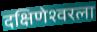
दक्षिणेश्वरला